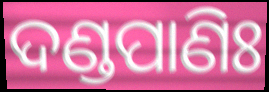
ଦଣ୍ଡପାଣିଃ